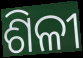
ଶିଳୀ